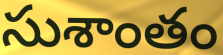
సుశాంతం